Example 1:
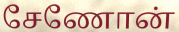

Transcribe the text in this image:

சேணோன்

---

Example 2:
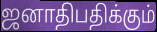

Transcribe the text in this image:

ஜனாதிபதிக்கும்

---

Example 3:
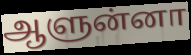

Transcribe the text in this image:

ஆளுன்னா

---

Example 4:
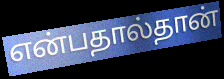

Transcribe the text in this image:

என்பதால்தான்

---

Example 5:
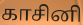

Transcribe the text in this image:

காசினி